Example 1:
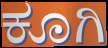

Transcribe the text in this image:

ಕೂಗಿ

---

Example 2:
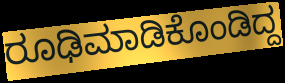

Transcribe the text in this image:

ರೂಢಿಮಾಡಿಕೊಂಡಿದ್ದ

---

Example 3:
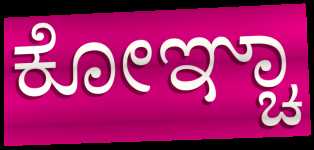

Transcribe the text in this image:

ಕೋಞ್ಚಾ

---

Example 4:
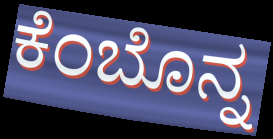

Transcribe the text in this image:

ಕೆಂಬೊನ್ನ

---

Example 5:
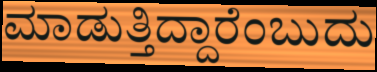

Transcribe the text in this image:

ಮಾಡುತ್ತಿದ್ದಾರೆಂಬುದು